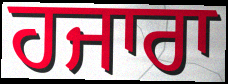
ਹਜਾਰਾ